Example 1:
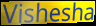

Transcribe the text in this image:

Vishesha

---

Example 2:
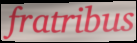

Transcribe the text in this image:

fratribus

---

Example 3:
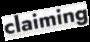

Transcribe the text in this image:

claiming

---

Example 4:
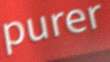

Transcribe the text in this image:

purer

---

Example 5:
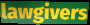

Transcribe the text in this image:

lawgivers